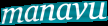
manavu